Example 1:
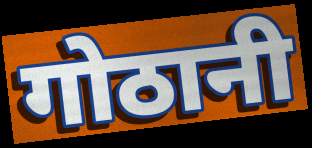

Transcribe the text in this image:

गोठानी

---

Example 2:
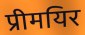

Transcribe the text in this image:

प्रीमयिर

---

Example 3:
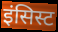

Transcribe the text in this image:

इंसिस्ट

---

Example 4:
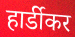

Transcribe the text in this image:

हार्डीकर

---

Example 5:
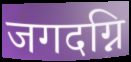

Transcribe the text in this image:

जगदग्नि